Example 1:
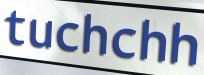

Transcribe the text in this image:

tuchchh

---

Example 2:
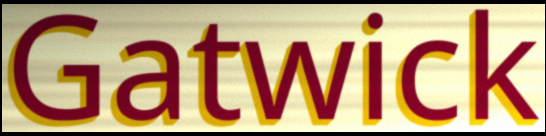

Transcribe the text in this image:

Gatwick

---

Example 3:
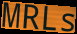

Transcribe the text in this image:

MRLs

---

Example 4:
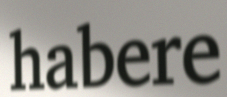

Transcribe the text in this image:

habere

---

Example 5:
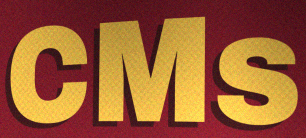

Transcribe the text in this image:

CMs